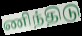
ணிந்திடு